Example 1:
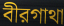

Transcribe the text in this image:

বীরগাথা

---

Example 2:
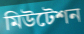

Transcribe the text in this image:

মিউটেশন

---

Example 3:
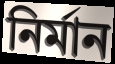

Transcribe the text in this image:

নির্মান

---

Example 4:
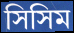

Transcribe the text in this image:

সিসিম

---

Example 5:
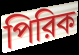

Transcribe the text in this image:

পিরিক